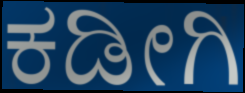
ಕಡೀಗಿ